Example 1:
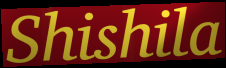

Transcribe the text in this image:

Shishila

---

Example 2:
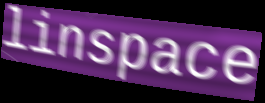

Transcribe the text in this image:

linspace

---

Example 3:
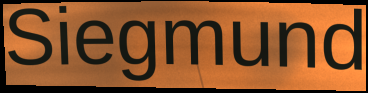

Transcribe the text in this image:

Siegmund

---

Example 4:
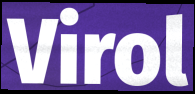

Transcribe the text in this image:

Virol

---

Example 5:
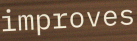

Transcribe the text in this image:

improves